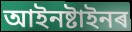
আইনষ্টাইনৰ